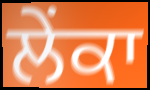
ਲੇਂਕਾ